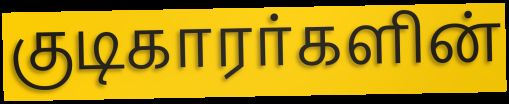
குடிகாரர்களின்